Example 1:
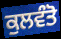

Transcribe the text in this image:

ਕੁਲਵੰਤੋ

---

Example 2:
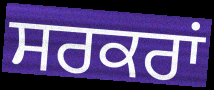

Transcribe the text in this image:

ਸਰਕਰਾਂ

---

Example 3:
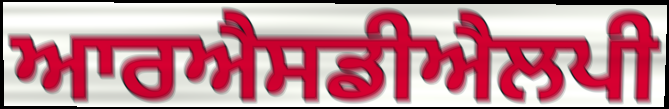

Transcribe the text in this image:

ਆਰਐਸਡੀਐਲਪੀ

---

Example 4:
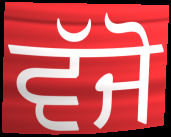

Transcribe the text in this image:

ਵੱਜੋ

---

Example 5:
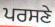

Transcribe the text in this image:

ਪਰਸਣੇ